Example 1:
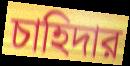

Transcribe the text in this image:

চাহিদার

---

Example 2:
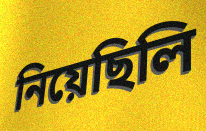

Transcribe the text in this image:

নিয়েছিলি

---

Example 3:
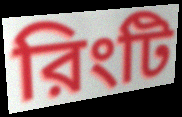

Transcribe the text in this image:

রিংটি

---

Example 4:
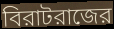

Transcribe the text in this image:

বিরাটরাজের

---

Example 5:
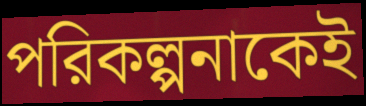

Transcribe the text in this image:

পরিকল্পনাকেই